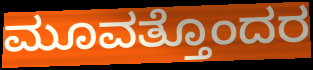
ಮೂವತ್ತೊಂದರ